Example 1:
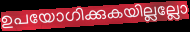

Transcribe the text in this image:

ഉപയോഗിക്കുകയില്ലല്ലോ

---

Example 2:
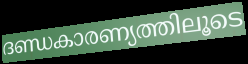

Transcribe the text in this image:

ദണ്ഡകാരണ്യത്തിലൂടെ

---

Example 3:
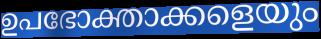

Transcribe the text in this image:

ഉപഭോക്താക്കളെയും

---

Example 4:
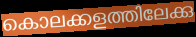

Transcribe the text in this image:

കൊലക്കളത്തിലേക്കു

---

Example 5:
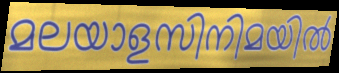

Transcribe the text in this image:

മലയാളസിനിമയിൽ